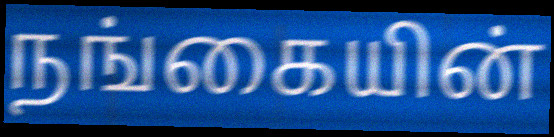
நங்கையின்